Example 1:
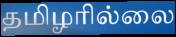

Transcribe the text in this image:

தமிழரில்லை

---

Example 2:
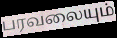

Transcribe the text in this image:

பரவலையும்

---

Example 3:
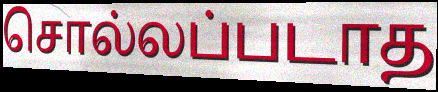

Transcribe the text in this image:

சொல்லப்படாத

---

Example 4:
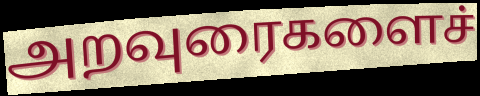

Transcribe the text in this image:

அறவுரைகளைச்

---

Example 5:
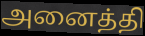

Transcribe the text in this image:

அனைத்தி